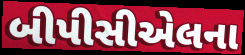
બીપીસીએલના